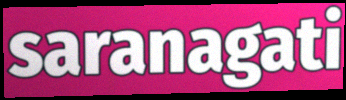
saranagati